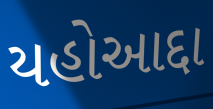
યહોઆદ્દા